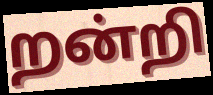
றன்றி